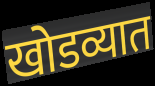
खोडव्यात